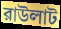
রাউলাট